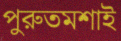
পুরুতমশাই